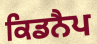
ਕਿਡਨੈਪ